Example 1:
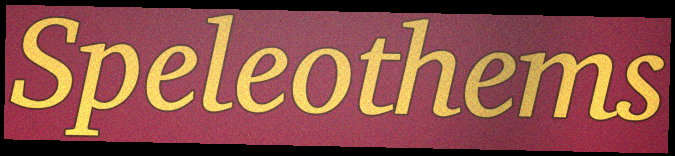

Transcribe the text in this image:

Speleothems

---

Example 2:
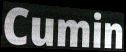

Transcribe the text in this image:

Cumin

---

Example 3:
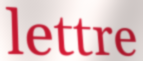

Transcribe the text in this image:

lettre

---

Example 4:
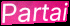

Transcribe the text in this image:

Partai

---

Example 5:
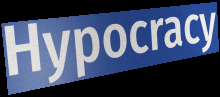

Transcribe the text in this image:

Hypocracy